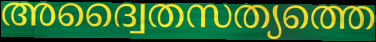
അദ്വൈതസത്യത്തെ